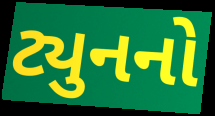
ટ્યુનનો